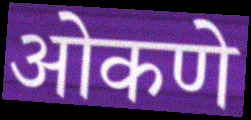
ओकणे